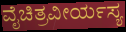
ವೈಚಿತ್ರವೀರ್ಯಸ್ಯ